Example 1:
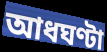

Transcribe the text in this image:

আধঘণ্টা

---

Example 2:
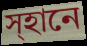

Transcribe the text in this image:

স্হানে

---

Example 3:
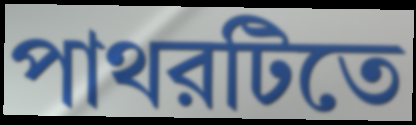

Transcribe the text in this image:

পাথরটিতে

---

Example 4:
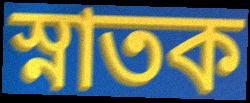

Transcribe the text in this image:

স্নাতক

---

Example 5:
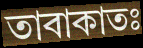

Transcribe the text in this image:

তাবাকাতঃ